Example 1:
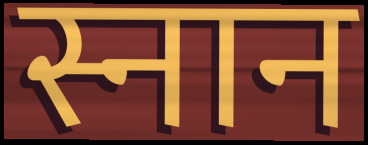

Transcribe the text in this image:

स्‍नान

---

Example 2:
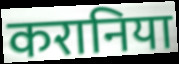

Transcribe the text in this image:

करानिया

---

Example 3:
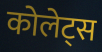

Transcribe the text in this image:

कोलेट्स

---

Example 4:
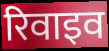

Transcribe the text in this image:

रिवाइव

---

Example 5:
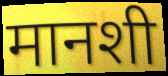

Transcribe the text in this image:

मानशी